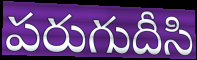
పరుగుదీసి